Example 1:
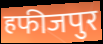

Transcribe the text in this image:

हफीजपुर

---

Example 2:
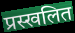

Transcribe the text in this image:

प्रस्खलित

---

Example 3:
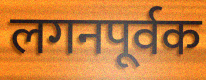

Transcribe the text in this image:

लगनपूर्वक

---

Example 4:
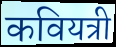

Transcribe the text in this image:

कवियत्री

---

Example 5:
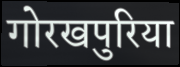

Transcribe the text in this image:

गोरखपुरिया